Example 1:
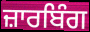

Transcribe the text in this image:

ਜ਼ਾਰਬਿੰਗ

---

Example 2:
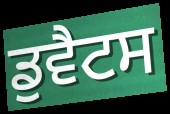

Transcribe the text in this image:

ਡੁਵੈਟਸ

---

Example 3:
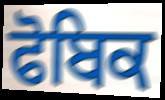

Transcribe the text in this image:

ਫੋਬਿਕ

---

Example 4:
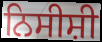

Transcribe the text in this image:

ਨਿਸੀਸ਼ੀ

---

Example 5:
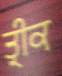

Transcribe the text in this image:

ਤ੍ਰੀਕ